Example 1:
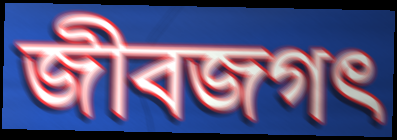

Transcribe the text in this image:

জীবজগৎ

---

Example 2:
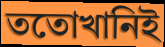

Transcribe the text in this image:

ততোখানিই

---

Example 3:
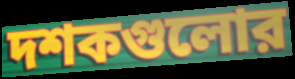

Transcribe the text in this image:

দশকগুলোর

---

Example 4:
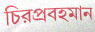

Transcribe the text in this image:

চিরপ্রবহমান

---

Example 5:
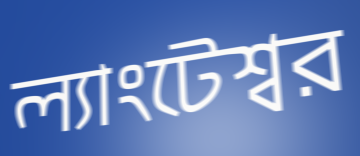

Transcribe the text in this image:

ল্যাংটেশ্বর